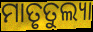
ମାତୃତୁଲ୍ୟା